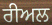
ਰੀਅਲ